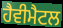
ਹੈਵੀਮੈਟਲ